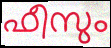
ഫീസും